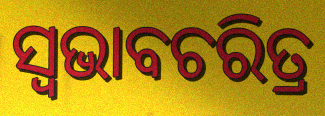
ସ୍ବଭାବଚରିତ୍ର